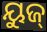
ୟୁଜ୍